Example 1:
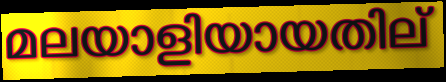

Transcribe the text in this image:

മലയാളിയായതില്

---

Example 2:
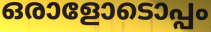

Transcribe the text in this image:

ഒരാളോടൊപ്പം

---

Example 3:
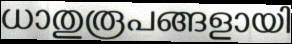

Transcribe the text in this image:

ധാതുരൂപങ്ങളായി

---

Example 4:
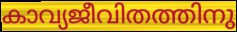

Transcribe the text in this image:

കാവ്യജീവിതത്തിനു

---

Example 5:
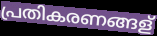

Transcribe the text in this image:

പ്രതികരണങ്ങള്